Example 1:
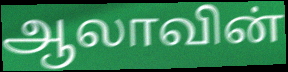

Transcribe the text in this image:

ஆலாவின்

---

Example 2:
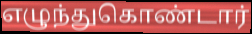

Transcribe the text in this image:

எழுந்துகொண்டார்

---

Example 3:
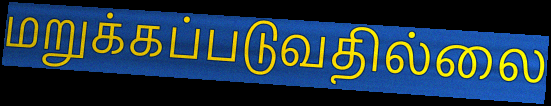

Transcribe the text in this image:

மறுக்கப்படுவதில்லை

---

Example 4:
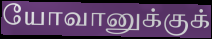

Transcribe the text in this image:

யோவானுக்குக்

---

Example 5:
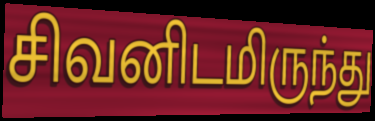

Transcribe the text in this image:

சிவனிடமிருந்து